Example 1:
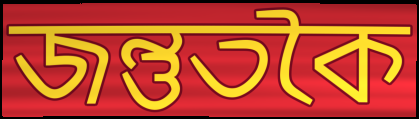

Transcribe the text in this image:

জন্তুতকৈ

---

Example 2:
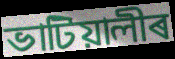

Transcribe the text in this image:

ভাটিয়ালীৰ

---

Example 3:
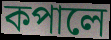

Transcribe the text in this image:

কপালে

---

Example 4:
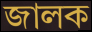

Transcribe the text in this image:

জালক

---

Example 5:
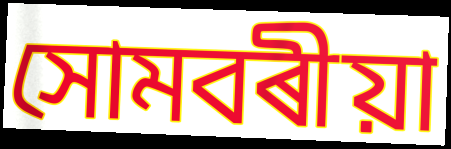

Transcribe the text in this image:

সোমবৰীয়া